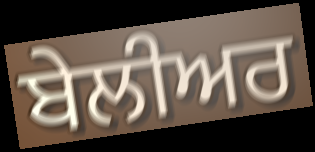
ਬੇਲੀਅਰ